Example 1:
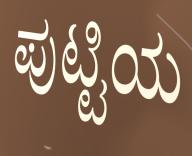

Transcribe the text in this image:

ಪುಟ್ಟಿಯ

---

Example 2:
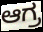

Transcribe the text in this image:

ಆಗ್ರ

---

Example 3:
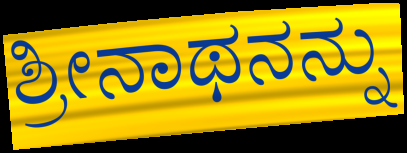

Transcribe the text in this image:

ಶ್ರೀನಾಥನನ್ನು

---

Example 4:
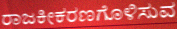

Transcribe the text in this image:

ರಾಜಕೀಕರಣಗೊಳಿಸುವ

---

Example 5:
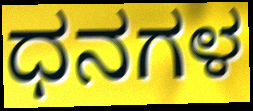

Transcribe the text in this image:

ಧನಗಳ